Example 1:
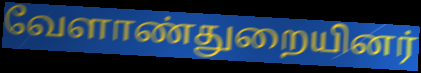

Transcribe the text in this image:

வேளாண்துறையினர்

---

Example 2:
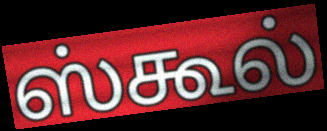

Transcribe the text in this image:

ஸ்கூல்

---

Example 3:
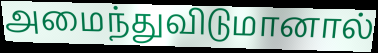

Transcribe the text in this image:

அமைந்துவிடுமானால்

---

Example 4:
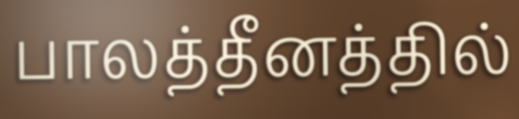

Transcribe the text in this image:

பாலத்தீனத்தில்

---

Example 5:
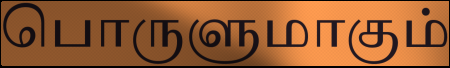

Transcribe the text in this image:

பொருளுமாகும்